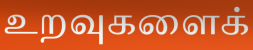
உறவுகளைக்